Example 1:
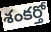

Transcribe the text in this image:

శంకర్తో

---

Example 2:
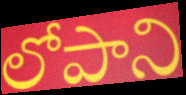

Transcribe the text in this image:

లోపాని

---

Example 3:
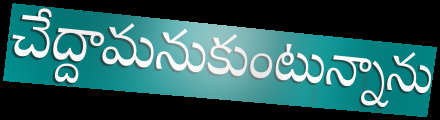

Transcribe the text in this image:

చేద్దామనుకుంటున్నాను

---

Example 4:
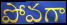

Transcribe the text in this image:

పోవగా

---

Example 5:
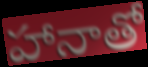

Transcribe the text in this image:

హానాతో